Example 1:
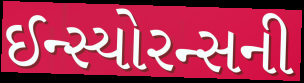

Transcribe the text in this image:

ઈન્સ્યોરન્સની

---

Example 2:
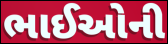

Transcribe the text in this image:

ભાઈઓની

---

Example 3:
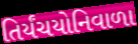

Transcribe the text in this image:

તિર્યંચયોનિવાળા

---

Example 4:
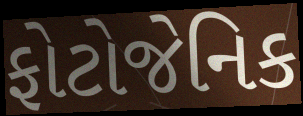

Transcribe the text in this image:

ફોટોજેનિક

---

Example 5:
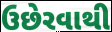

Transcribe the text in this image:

ઉછેરવાથી